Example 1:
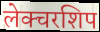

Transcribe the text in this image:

लेक्चरशिप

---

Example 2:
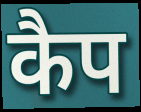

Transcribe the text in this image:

कैप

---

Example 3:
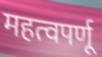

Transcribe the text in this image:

महत्‍वपर्णू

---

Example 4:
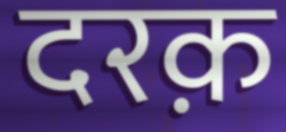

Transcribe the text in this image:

दरक़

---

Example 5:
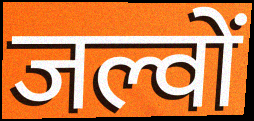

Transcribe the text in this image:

जल्वों